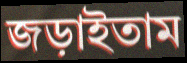
জড়াইতাম